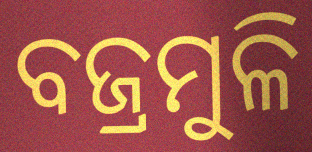
ବଜ୍ରମୁଳି